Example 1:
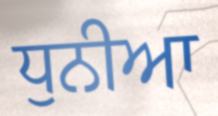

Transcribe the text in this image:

ਧੁਨੀਆ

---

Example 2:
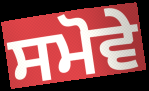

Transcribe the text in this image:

ਸਮੋਵੇ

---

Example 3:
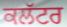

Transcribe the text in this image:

ਕਲੱਟਰ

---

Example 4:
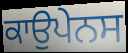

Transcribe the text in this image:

ਕਾਉਪੇਨਸ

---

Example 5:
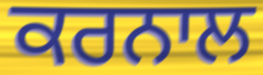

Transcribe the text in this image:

ਕਰਨਾਲ